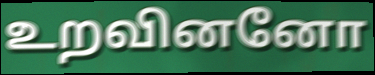
உறவினனோ